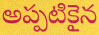
అప్పటికైన